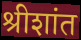
श्रीशांत